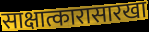
साक्षात्कारासारखा